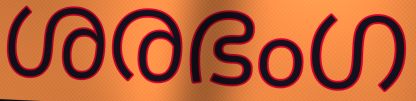
ശരഭംഗ